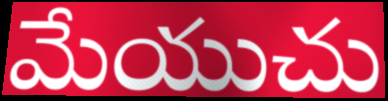
మేయుచు